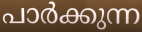
പാർക്കുന്ന